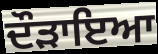
ਦੌੜਾਇਆ